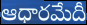
ఆధారమేదీ